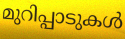
മുറിപ്പാടുകൾ